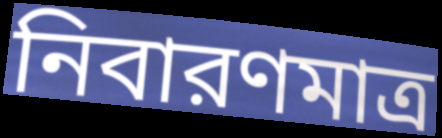
নিবারণমাত্র